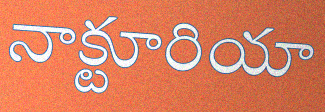
నాక్టూరియా